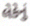
લેકેનું